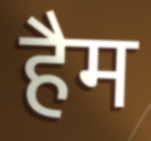
हैम